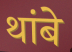
थांबे